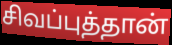
சிவப்புத்தான்